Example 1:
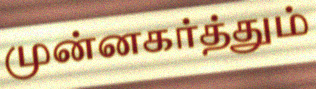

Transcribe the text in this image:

முன்னகர்த்தும்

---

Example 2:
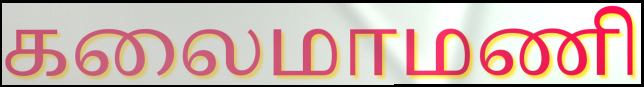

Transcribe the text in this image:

கலைமாமணி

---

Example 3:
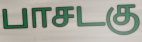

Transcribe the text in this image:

பாசடகு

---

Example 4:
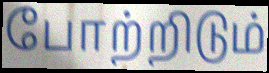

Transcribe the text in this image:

போற்றிடும்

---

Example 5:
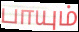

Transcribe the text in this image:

பாயும்